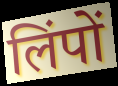
लिंपों